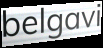
belgavi